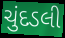
ચુંદડલી